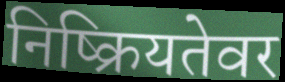
निष्क्रियतेवर